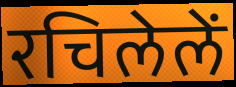
रचिलेलें